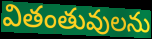
వితంతువులను